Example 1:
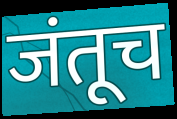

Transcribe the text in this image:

जंतूच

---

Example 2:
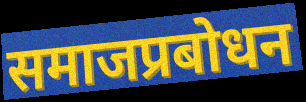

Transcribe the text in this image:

समाजप्रबोधन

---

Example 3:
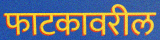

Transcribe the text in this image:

फाटकावरील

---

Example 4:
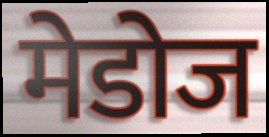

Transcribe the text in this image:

मेडोज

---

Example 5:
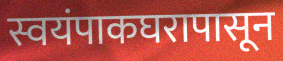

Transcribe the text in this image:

स्वयंपाकघरापासून